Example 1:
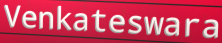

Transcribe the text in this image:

Venkateswara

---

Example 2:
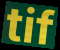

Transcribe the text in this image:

tif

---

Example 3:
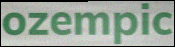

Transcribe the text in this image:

ozempic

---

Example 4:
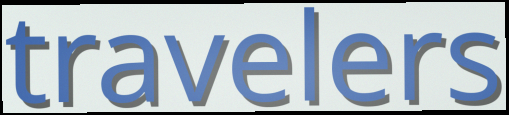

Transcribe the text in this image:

travelers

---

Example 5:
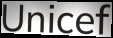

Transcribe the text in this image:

Unicef